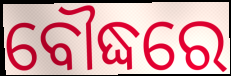
ବୌଦ୍ଧରେ